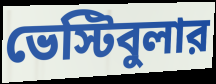
ভেস্টিবুলার